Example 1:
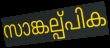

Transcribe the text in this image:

സാങ്കല്പ്പിക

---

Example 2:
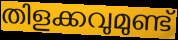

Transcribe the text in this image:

തിളക്കവുമുണ്ട്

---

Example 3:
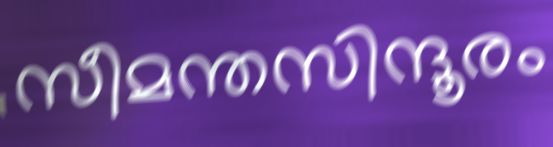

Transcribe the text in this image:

സീമന്തസിന്ദൂരം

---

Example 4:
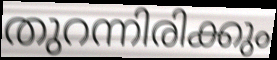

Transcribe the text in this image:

തുറന്നിരിക്കും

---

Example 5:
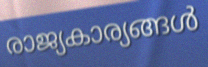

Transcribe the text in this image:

രാജ്യകാര്യങ്ങൾ